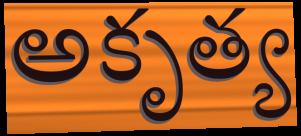
అకృత్య